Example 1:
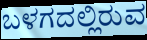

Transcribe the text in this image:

ಬಳಗದಲ್ಲಿರುವ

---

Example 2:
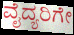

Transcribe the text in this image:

ವೈದ್ಯರಿಗೇ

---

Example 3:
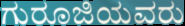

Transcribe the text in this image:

ಗುರೂಜಿಯವರು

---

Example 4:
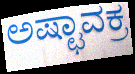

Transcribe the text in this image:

ಅಷ್ಟಾವಕ್ರ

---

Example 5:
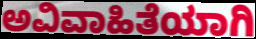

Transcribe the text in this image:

ಅವಿವಾಹಿತೆಯಾಗಿ